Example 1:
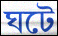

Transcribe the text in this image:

ঘটে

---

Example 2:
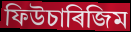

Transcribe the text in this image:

ফিউচাৰিজিম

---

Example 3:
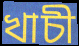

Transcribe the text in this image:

খাচী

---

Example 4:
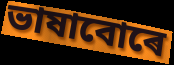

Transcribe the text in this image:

ভাষাবোৰে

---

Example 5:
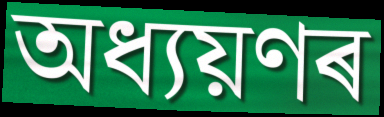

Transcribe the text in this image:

অধ্যয়ণৰ